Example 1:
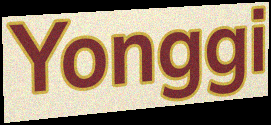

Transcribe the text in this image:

Yonggi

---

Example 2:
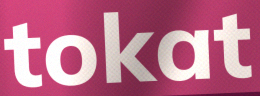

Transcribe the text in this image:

tokat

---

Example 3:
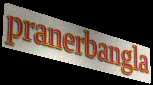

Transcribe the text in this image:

pranerbangla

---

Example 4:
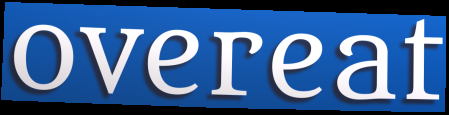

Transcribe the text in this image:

overeat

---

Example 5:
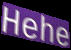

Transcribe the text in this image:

Hehe